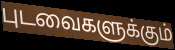
புடவைகளுக்கும்